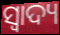
ସ୍ଵାଦ୍ୟ